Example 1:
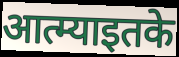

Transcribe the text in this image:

आत्म्याइतके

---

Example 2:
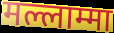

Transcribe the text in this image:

मल्लाम्मा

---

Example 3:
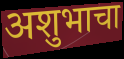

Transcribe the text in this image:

अशुभाचा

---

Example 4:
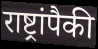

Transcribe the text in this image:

राष्ट्रांपैकी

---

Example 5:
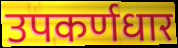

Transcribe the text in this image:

उपकर्णधार